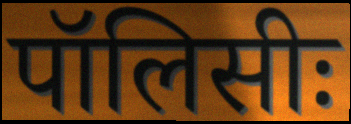
पॉलिसीः